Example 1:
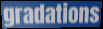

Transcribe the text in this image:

gradations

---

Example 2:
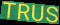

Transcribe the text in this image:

TRUS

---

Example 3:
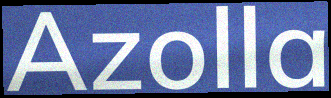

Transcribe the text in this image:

Azolla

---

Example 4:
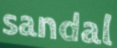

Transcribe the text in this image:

sandal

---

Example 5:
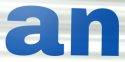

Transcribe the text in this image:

an